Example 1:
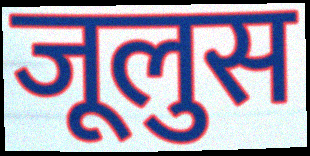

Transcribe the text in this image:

जूलुस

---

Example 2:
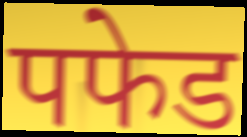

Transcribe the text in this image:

पफेड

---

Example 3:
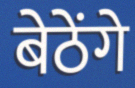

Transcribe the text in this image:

बेठेंगे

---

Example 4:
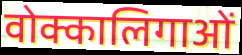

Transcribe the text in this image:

वोक्कालिगाओं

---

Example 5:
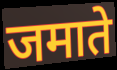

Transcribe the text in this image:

जमाते